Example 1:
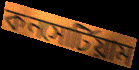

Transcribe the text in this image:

কনসোর্টিয়াম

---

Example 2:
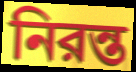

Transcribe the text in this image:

নিরন্ত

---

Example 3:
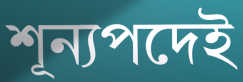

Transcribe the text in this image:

শূন্যপদেই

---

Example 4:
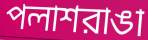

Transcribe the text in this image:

পলাশরাঙা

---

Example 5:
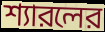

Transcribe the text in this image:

শ্যারলের